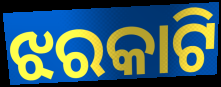
ଝରକାଟି